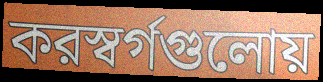
করস্বর্গগুলোয়